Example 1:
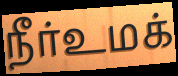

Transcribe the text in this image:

நீர்உமக்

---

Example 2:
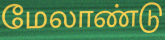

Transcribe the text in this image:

மேலாண்டு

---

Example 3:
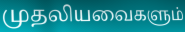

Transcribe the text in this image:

முதலியவைகளும்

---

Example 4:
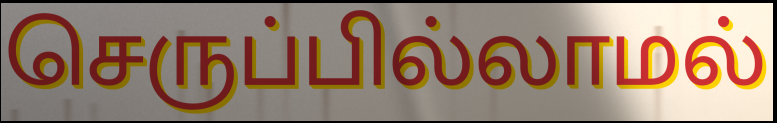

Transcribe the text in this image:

செருப்பில்லாமல்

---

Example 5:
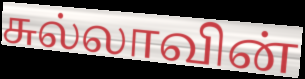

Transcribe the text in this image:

சுல்லாவின்